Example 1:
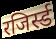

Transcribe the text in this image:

रजिर्स्ड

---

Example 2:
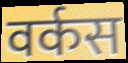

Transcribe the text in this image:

वर्कस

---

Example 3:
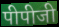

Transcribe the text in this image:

पीपीजी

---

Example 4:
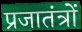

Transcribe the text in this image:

प्रजातंत्रों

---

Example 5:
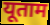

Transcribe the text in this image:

यूताम